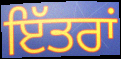
ਇੱਤਰਾਂ